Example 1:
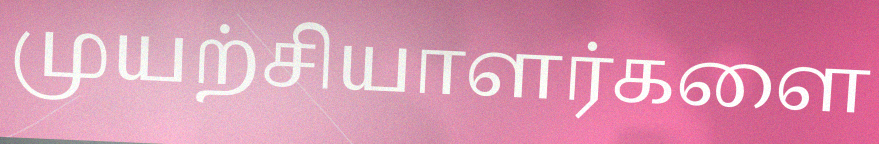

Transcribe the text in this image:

முயற்சியாளர்களை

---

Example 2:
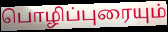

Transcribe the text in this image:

பொழிப்புரையும்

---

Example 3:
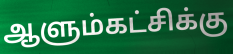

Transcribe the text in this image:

ஆளும்கட்சிக்கு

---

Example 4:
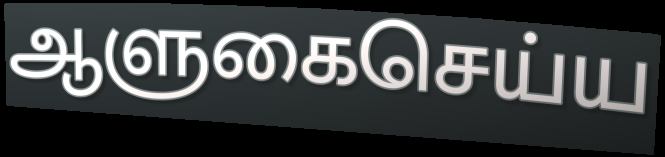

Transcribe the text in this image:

ஆளுகைசெய்ய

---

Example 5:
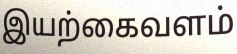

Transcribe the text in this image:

இயற்கைவளம்